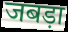
जबड़ा